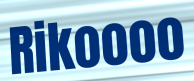
Rikoooo